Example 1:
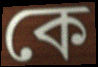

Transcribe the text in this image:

কে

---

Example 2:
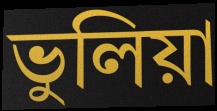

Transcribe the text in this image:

ভুলিয়া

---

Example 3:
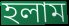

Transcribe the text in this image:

হলাম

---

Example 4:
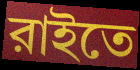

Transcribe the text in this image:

রাইতে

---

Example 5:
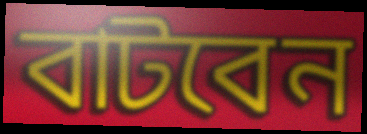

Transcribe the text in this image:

বাটবেন